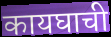
कायघाची